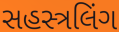
સહસ્ત્રલિંગ